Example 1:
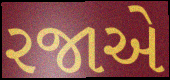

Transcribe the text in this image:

રજાએ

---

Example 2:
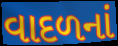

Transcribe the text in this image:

વાદળનાં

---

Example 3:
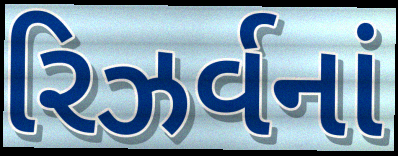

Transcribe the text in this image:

રિઝર્વનાં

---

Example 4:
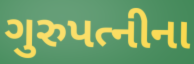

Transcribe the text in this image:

ગુરુપત્નીના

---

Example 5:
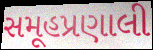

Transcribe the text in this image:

સમૂહપ્રણાલી